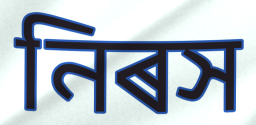
নিৰস